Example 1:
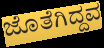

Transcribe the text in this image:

ಜೊತೆಗಿದ್ದವ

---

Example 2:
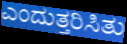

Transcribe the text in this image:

ಎಂದುತ್ತರಿಸಿತು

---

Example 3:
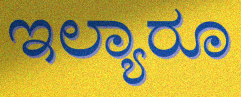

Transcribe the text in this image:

ಇಲ್ಯಾರೂ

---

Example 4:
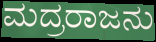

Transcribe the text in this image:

ಮದ್ರರಾಜನು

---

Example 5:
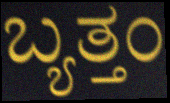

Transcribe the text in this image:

ಬ್ಯತ್ತಂ